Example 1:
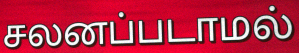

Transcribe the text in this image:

சலனப்படாமல்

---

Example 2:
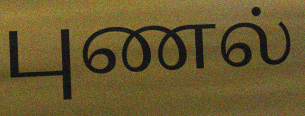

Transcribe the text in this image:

புணல்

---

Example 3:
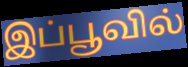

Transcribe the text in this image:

இப்பூவில்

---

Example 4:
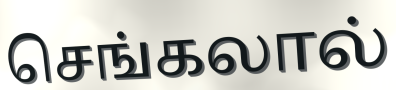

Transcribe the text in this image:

செங்கலால்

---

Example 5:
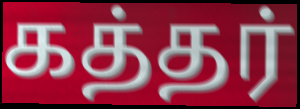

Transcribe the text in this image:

கத்தர்